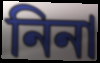
নিনা